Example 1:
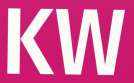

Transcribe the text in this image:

KW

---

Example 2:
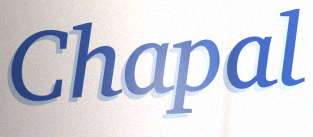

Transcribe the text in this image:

Chapal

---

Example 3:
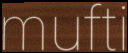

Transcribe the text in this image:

mufti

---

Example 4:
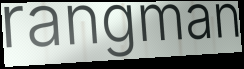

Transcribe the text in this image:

rangman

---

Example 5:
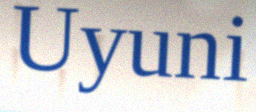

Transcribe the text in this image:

Uyuni